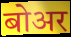
बोअर